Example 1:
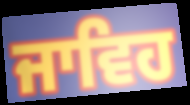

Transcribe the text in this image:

ਜਾਵਿਹ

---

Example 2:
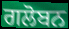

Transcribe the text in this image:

ਗਲੋਬਨ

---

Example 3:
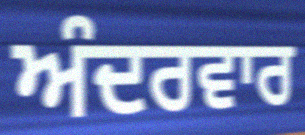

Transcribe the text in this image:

ਅੰਦਰਵਾਰ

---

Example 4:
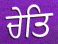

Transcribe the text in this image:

ਚੇਤਿ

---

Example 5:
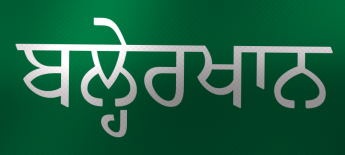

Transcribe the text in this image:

ਬਲ੍ਹੇਰਖਾਨ